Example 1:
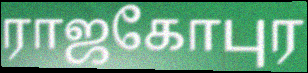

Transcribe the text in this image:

ராஜகோபுர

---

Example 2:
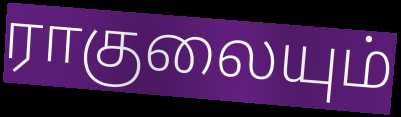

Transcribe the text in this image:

ராகுலையும்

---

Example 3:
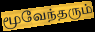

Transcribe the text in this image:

மூவேந்தரும்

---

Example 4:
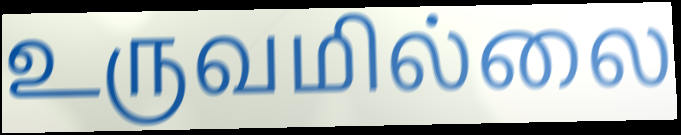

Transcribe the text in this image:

உருவமில்லை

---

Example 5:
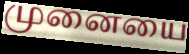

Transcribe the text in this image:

முனையை